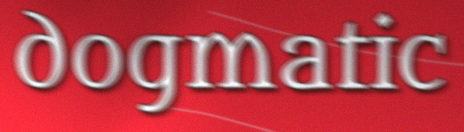
dogmatic